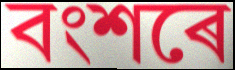
বংশৰে